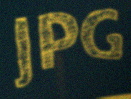
JPG